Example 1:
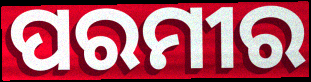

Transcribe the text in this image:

ପରମୀର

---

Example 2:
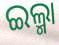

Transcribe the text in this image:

ଇଲ୍ମା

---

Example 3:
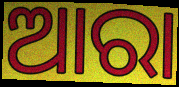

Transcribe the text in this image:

ଆରା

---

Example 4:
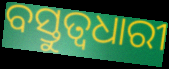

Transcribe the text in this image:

ବସ୍ତୁତ୍ୱଧାରୀ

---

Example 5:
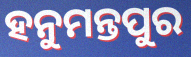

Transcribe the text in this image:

ହନୁମନ୍ତପୁର